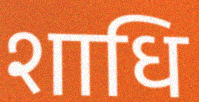
शाधि